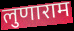
लुणाराम